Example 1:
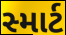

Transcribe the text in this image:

સ્માર્ટ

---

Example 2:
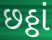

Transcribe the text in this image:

છઠ્ઠાં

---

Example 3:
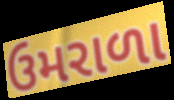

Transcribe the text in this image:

ઉમરાળા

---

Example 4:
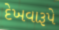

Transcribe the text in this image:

દેખવારૂપે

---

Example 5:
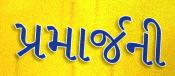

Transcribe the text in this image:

પ્રમાર્જની